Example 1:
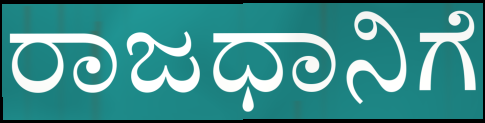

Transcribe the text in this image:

ರಾಜಧಾನಿಗೆ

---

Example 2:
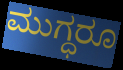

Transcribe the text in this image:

ಮುಗ್ಧರೂ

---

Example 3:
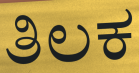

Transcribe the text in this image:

ತಿಲಕ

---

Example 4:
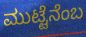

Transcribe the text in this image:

ಮುಟ್ಟೆನೆಂಬ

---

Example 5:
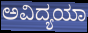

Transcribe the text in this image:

ಅವಿದ್ಯಯಾ